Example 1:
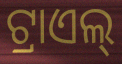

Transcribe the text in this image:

ଟ୍ରାଏଲ୍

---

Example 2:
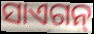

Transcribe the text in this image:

ସାଏଗନ୍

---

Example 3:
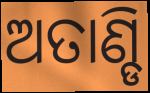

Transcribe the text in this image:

ଅତାଣ୍ଡି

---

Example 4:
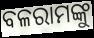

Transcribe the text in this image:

ବଳରାମଙ୍କୁ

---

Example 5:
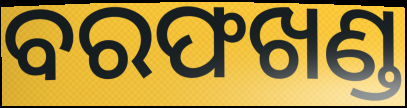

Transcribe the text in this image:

ବରଫଖଣ୍ଡ